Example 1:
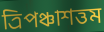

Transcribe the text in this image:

ত্রিপঞ্চাশত্তম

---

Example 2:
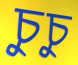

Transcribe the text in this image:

চুচু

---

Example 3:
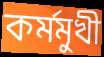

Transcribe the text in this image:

কর্মমুখী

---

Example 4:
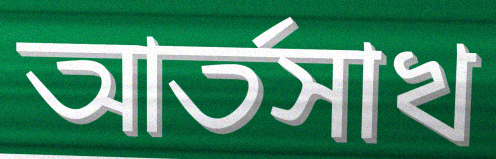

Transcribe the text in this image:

আর্তসাখ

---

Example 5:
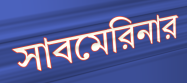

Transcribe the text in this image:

সাবমেরিনার